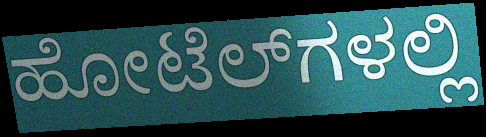
ಹೋಟೆಲ್‌ಗಳಲ್ಲಿ